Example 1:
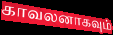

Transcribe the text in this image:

காவலனாகவும்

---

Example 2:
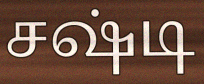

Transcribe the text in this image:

சஷ்டி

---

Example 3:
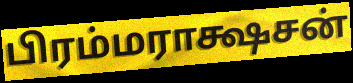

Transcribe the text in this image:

பிரம்மராக்ஷசன்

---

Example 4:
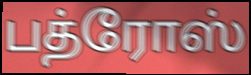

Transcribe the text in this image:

பத்ரோஸ்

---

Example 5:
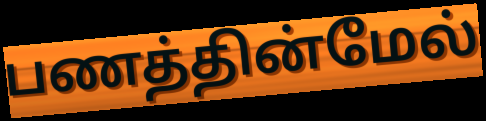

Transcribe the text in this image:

பணத்தின்மேல்